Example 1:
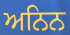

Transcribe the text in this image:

ਅਨਿਨ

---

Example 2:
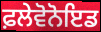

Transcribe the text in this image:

ਫ਼ਲੇਵੋਨੋਇਡ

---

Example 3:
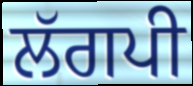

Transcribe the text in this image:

ਲੱਗਪੀ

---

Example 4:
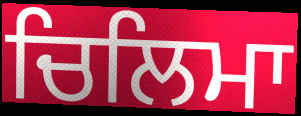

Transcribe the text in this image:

ਚਿਲਿਮਾ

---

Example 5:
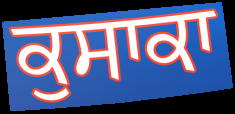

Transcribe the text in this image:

ਕੁਸਾਕਾ